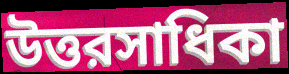
উত্তরসাধিকা